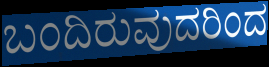
ಬಂದಿರುವುದರಿಂದ